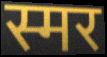
स्मर